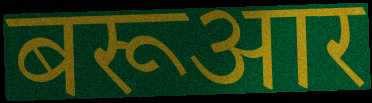
बरूआर